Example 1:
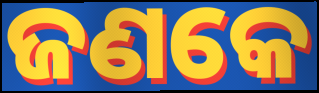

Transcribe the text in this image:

ଜଣକେ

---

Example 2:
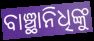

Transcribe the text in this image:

ବାଞ୍ଛାନିଧିଙ୍କୁ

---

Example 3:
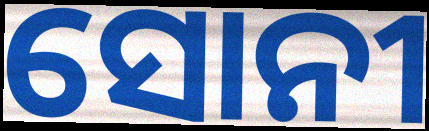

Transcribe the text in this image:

ସୋନୀ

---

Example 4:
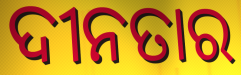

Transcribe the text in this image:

ଦୀନତାର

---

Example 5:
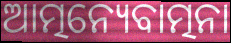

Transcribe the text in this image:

ଆତ୍ମନ୍ୟେବାତ୍ମନା